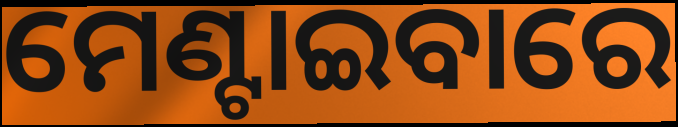
ମେଣ୍ଟାଇବାରେ